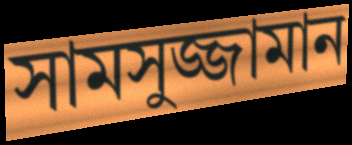
সামসুজ্জামান